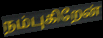
நம்புகிறேன்